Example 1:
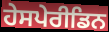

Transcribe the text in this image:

ਹੇਸਪੇਰੀਡਿਨ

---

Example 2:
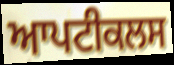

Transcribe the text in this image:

ਆਪਟੀਕਲਸ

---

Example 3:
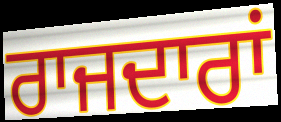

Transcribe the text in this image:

ਰਾਜਦਾਰਾਂ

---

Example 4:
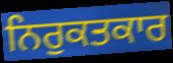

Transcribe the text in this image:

ਨਿਰੁਕਤਕਾਰ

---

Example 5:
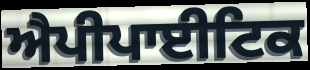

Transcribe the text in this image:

ਐਪੀਪਾਈਟਿਕ